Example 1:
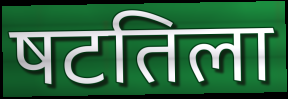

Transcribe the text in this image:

षटतिला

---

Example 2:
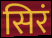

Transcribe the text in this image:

सिरं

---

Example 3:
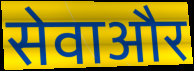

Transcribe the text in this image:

सेवाऔर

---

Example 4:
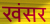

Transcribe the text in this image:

खंसर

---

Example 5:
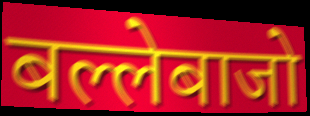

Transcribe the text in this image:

बल्लेबाजो